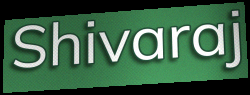
Shivaraj